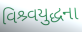
વિશ્ર્વયુદ્ધના